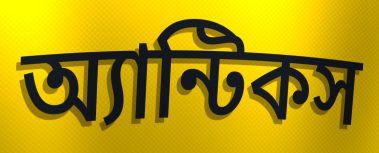
অ্যান্টিকস